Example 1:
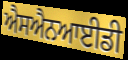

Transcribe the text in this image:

ਐਸਐਨਆਈਡੀ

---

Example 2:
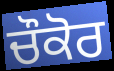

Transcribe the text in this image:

ਚੌਕੋਰ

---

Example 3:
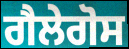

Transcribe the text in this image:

ਗੈਲੇਗੋਸ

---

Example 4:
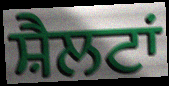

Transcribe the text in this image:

ਸ਼ੈਲਟਾਂ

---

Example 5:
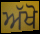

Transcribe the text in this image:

ਅੱਖੋ